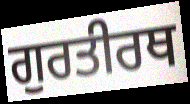
ਗੁਰਤੀਰਥ